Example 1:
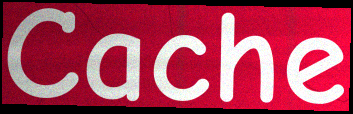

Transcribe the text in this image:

Cache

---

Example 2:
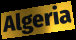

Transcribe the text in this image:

Algeria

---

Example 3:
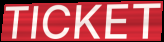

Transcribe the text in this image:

TICKET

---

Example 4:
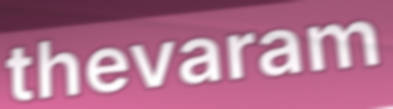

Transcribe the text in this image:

thevaram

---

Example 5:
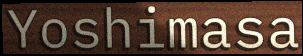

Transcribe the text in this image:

Yoshimasa